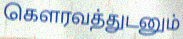
கௌரவத்துடனும்